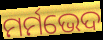
ମର୍ମଭେଦ